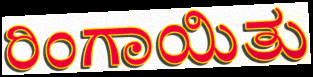
ರಿಂಗಾಯಿತು